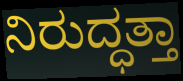
ನಿರುದ್ಧತ್ತಾ